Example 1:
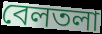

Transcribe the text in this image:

বেলতলা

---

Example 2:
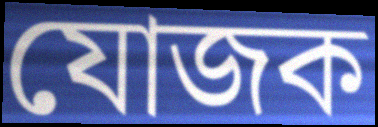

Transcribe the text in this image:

যোজক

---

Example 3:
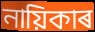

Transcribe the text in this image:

নায়িকাৰ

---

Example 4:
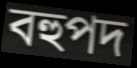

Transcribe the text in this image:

বহুপদ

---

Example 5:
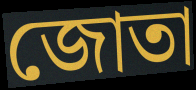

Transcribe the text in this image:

জোতা